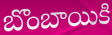
బొంబాయికి